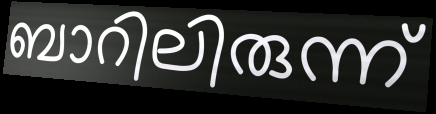
ബാറിലിരുന്ന്